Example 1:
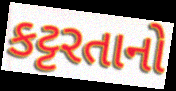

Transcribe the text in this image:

કટ્ટરતાનો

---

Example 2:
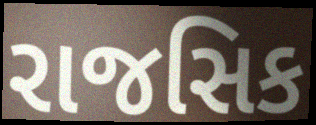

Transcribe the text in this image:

રાજસિક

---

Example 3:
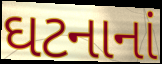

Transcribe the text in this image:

ઘટનાનાં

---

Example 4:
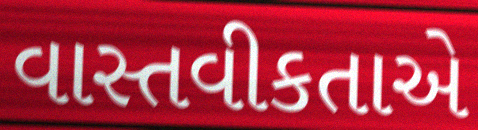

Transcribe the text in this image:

વાસ્તવીકતાએ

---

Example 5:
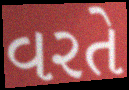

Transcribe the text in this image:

વરતે